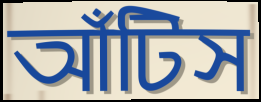
আঁটিস